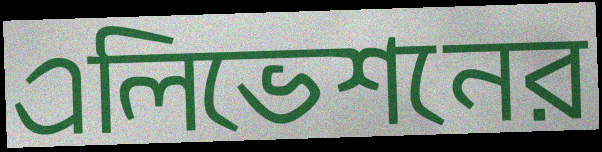
এলিভেশনের